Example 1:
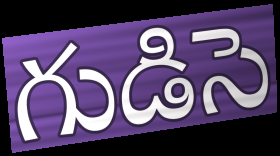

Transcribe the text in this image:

గుడిసె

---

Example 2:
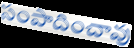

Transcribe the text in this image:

సంపాదించావు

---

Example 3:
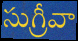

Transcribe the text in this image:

సుగ్రీవా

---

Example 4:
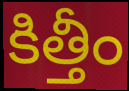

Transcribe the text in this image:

కిత్తీం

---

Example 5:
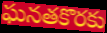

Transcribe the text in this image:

ఘనతకొరకు